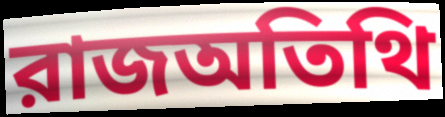
রাজঅতিথি